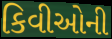
કિવીઓની